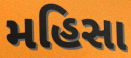
મહિસા